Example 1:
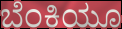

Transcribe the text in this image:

ಬೆಂಕಿಯೂ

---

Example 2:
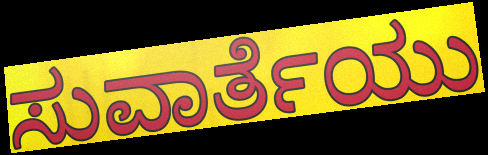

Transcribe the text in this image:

ಸುವಾರ್ತೆಯು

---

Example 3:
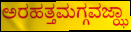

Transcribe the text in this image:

ಅರಹತ್ತಮಗ್ಗವಜ್ಝಾ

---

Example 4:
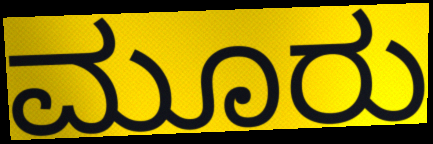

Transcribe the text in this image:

ಮೂರು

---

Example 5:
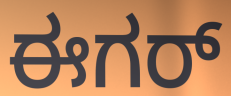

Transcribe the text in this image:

ಈಗರ್